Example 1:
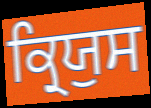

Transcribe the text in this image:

ਕ੍ਰਿਯੁਸ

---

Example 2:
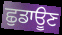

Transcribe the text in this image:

ਛੁਡਾਊਣ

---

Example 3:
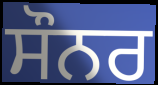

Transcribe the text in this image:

ਸੌਨਰ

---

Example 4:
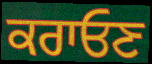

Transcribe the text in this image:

ਕਰਾਓਣ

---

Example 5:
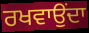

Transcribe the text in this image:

ਰਖਵਾਉਂਦਾ